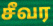
சீவர